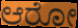
ಆರೋ